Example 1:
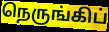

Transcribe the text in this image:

நெருங்கிப்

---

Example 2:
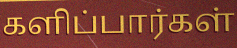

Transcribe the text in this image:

களிப்பார்கள்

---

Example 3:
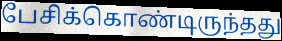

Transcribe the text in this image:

பேசிக்கொண்டிருந்தது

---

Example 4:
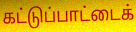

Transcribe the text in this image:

கட்டுப்பாட்டைக்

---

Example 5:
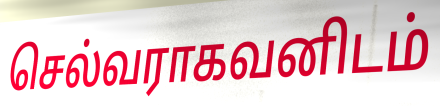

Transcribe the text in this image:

செல்வராகவனிடம்